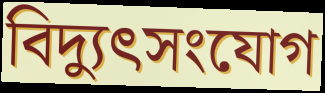
বিদ্যুৎসংযোগ